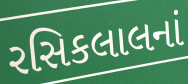
રસિકલાલનાં